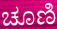
ಚೂಣಿ